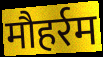
मौहर्रम